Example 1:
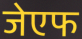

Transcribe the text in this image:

जेएफ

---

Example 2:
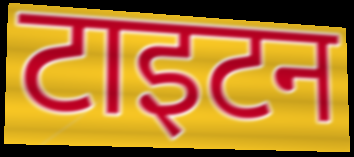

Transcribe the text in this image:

टाइटन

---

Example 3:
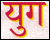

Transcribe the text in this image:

युग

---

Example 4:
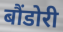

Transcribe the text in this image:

बौंडोरी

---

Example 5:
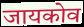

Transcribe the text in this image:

जायकोव